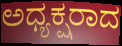
ಅಧ್ಯಕ್ಷರಾದ